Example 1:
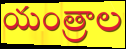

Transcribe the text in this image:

యంత్రాల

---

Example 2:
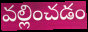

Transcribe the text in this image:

వల్లించడం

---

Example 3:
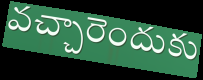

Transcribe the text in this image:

వచ్చారెందుకు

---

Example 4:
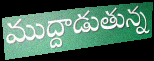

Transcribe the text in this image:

ముద్దాడుతున్న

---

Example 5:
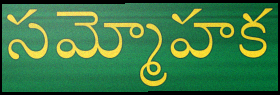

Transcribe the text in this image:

సమ్మోహక